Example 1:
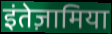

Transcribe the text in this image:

इंतेज़ामिया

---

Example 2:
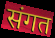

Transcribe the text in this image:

संगत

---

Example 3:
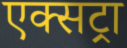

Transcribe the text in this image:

एक्सट्रा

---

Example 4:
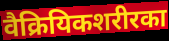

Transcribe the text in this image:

वैक्रियिकशरीरका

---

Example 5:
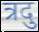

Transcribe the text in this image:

त्रदु